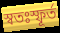
স্বতঃস্ফূৰ্ত